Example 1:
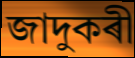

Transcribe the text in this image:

জাদুকৰী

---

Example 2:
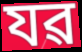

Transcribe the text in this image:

যৱ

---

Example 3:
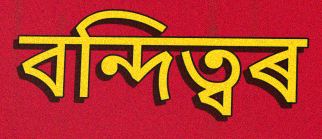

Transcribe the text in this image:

বন্দিত্বৰ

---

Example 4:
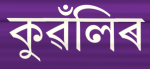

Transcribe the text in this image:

কুৱঁলিৰ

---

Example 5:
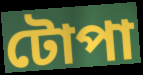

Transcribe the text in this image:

টোপা